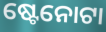
ଷ୍ଟେନୋଟା